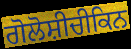
ਗੋਲੋਸ਼ੀਚੀਕਿਨ